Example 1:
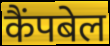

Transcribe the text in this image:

कैंपबेल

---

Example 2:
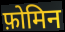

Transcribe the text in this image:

फ़ोमिन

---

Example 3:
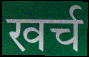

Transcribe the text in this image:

खर्च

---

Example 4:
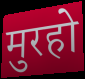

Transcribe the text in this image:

मुरहो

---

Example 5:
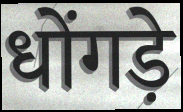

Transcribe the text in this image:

धोंगड़े